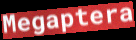
Megaptera